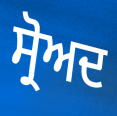
ਸ੍ਰੋਅਦ